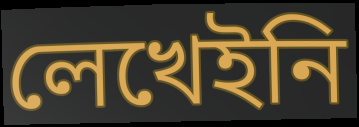
লেখেইনি